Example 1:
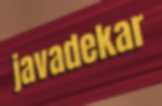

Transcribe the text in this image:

javadekar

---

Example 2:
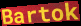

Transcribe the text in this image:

Bartok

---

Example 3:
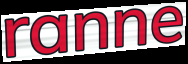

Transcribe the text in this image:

ranne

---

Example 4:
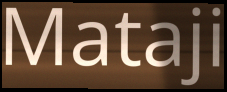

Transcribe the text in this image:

Mataji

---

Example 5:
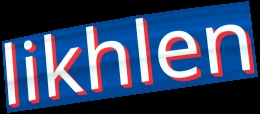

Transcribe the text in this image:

likhlen